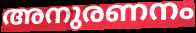
അനുരണനം